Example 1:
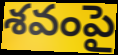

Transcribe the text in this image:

శవంపై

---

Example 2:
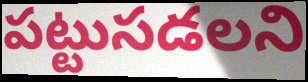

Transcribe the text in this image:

పట్టుసడలని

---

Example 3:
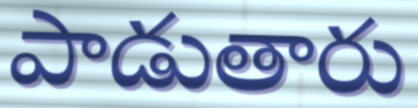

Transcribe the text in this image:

పాడుతారు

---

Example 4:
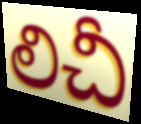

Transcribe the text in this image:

లిచీ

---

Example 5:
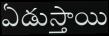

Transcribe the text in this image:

ఏడుస్తాయి